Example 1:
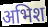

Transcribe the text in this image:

अभिश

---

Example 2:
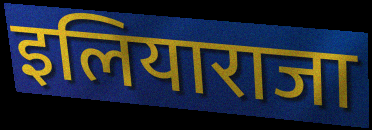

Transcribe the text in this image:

इलियाराजा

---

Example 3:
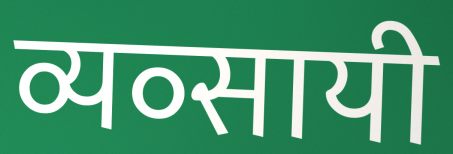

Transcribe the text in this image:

व्यव्सायी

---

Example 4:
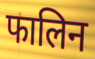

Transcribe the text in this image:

फालिन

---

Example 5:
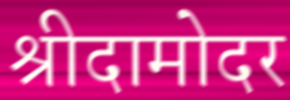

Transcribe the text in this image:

श्रीदामोदर